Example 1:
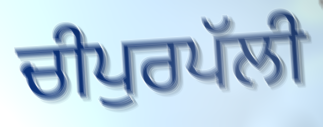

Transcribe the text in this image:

ਚੀਪੁਰਪੱਲੀ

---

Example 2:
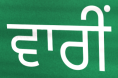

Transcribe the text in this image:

ਵਾਰੀਂ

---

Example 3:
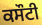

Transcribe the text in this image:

ਕਸੌਟੀ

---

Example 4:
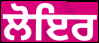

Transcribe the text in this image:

ਲੋਇਰ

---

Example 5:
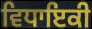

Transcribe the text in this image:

ਵਿਧਾਇਕੀ